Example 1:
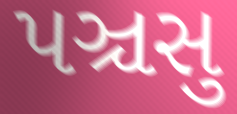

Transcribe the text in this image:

પઞ્ચસુ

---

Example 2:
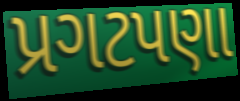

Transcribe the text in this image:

પ્રગટપણા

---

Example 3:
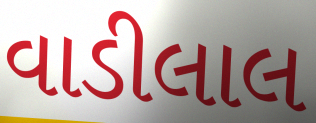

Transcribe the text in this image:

વાડીલાલ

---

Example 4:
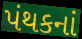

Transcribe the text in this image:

પંથકનાં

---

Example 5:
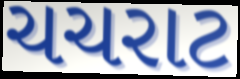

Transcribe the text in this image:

ચચરાટ